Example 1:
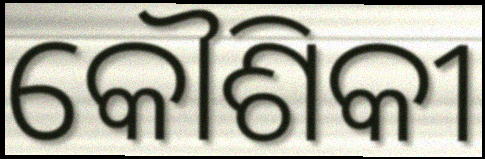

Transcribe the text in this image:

କୌଶିକୀ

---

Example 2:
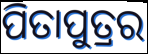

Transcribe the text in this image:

ପିତାପୁତ୍ରର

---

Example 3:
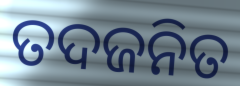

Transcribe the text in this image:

ତଦଜନିତ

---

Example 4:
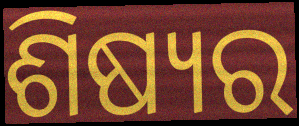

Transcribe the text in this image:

ଶିଷ୍ୟର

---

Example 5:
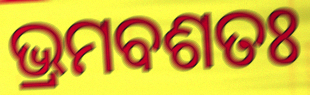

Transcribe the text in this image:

ଭ୍ରମବଶତଃ